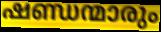
ഷണ്ഡന്മാരും